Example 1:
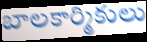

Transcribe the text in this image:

బాలకార్మికులు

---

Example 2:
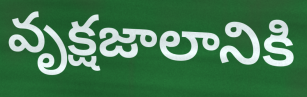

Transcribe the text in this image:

వృక్షజాలానికి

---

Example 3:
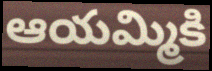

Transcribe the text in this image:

ఆయమ్మికి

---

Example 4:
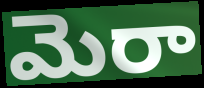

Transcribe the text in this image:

మెరా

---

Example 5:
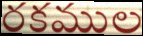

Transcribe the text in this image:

రకముల